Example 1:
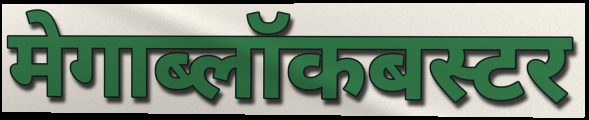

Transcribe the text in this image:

मेगाब्लॉकबस्टर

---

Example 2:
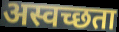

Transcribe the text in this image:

अस्वच्छता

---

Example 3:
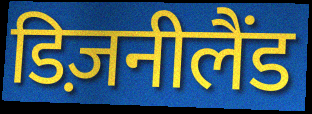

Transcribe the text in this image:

डिज़नीलैंड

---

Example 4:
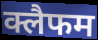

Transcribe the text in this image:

क्लैफम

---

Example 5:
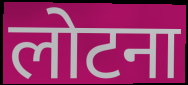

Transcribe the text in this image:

लोटना